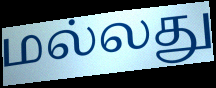
மல்லது